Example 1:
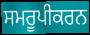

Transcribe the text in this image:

ਸਮਰੂਪੀਕਰਨ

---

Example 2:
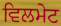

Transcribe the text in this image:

ਵਿਲਮੇਟ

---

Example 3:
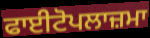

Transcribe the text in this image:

ਫਾਈਟੋਪਲਾਜ਼ਮਾ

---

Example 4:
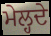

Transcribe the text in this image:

ਮੇਲ੍ਹਦੇ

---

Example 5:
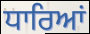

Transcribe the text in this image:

ਧਾਰਿਆਂ